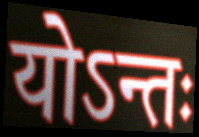
योऽन्तः